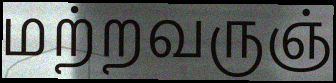
மற்றவருஞ்